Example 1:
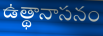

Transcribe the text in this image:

ఉత్థానాసనం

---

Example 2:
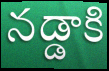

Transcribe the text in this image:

నడ్డాకి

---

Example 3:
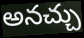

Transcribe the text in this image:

అనచ్చు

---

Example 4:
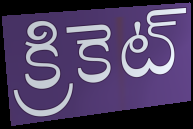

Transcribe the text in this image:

క్రికెట్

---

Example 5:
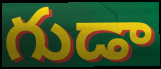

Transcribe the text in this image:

గుడా